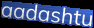
aadashtu